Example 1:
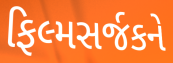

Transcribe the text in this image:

ફિલ્મસર્જકને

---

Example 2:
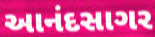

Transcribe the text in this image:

આનંદસાગર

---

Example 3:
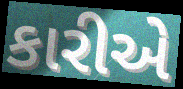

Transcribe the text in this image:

કારીએ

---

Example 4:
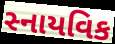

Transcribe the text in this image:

સ્નાયવિક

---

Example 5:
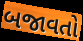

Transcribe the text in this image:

બજાવતો